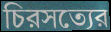
চিরসত্যের